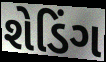
શેડિંગ